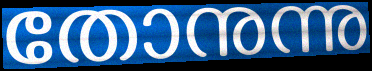
തോനുന്നു